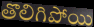
తొలిగిపోయి